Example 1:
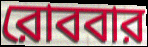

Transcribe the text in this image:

রোববার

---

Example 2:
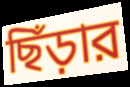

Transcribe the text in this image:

ছিঁড়ার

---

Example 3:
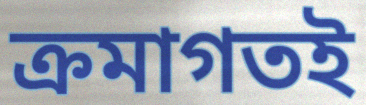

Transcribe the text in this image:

ক্রমাগতই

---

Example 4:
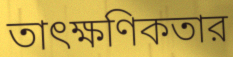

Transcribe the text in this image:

তাৎক্ষণিকতার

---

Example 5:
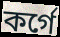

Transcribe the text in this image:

কর্গে